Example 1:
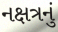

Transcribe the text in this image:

નક્ષત્રનું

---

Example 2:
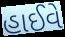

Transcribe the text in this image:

હાઈવે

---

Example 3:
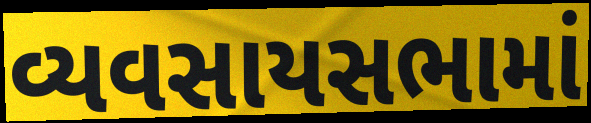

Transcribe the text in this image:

વ્યવસાયસભામાં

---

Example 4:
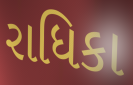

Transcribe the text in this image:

રાધિકા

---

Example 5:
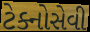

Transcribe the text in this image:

ટેક્નોસેવી